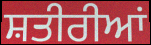
ਸ਼ਤੀਰੀਆਂ